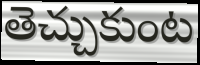
తెచ్చుకుంట